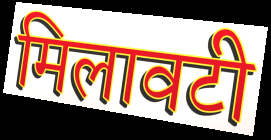
मिलावटी